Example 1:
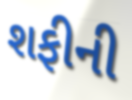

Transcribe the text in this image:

શફીની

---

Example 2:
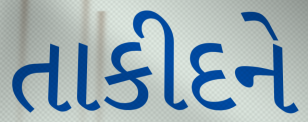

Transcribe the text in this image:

તાકીદને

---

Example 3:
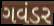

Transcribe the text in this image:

ગવંડર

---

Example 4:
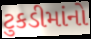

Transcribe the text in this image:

ટુકડીમાંનો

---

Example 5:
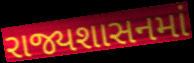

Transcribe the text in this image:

રાજ્યશાસનમાં